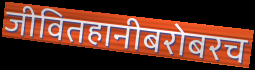
जीवितहानीबरोबरच